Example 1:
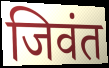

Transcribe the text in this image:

जिवंत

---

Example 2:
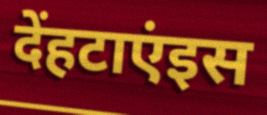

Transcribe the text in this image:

देंहटाएंइस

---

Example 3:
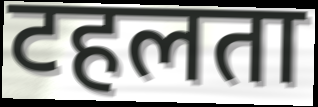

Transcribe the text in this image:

टहलता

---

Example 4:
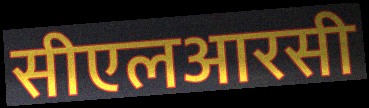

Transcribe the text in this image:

सीएलआरसी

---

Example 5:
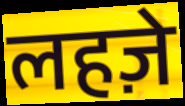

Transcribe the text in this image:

लहज़े